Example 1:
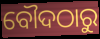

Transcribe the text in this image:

ବୌଦଠାରୁ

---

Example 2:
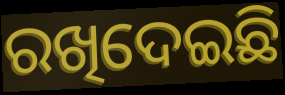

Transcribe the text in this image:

ରଖିଦେଇଛି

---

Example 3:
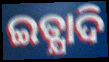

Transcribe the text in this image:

ଇତ୍ଯାଦି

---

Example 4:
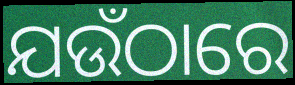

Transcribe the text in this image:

ଯଉଁଠାରେ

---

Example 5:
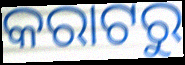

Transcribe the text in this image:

କରାଟରୁ